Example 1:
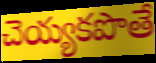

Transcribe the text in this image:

చెయ్యకపొతే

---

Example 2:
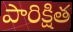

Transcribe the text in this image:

పారిక్షిత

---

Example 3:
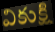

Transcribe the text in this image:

వికుక్షి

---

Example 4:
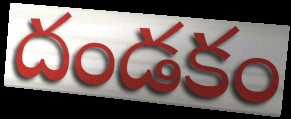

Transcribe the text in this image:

దండకం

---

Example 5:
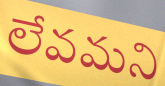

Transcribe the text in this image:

లేవమని